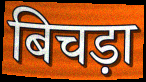
बिचड़ा